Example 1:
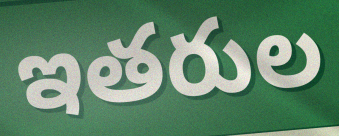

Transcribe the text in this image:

ఇతరుల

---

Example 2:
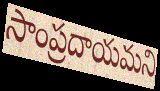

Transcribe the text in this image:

సాంప్రదాయమని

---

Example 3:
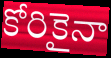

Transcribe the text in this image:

కోరికైనా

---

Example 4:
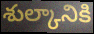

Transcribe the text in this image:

శుల్కానికి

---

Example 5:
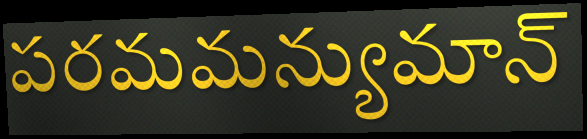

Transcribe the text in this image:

పరమమన్యుమాన్